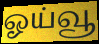
ஓய்வூ